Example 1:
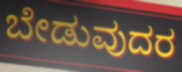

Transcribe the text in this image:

ಬೇಡುವುದರ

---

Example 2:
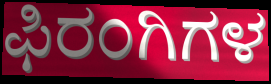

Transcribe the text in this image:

ಫಿರಂಗಿಗಳ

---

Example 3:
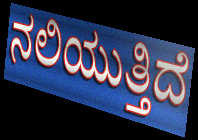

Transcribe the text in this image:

ನಲಿಯುತ್ತಿದೆ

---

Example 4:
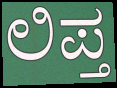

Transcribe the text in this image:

ಲಿಪ್ತ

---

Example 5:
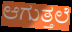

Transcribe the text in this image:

ಆಗುತ್ತಲೆ